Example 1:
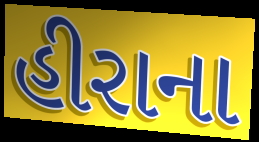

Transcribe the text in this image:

હીરાના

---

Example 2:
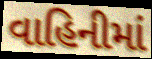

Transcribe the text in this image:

વાહિનીમાં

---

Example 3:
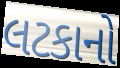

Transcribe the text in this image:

લટકાનો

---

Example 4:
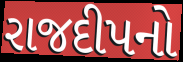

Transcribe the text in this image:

રાજદીપનો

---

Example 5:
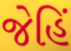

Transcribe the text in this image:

જેહિં